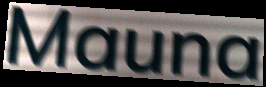
Mauna